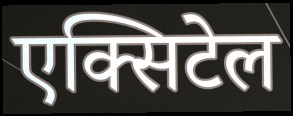
एक्सिटेल